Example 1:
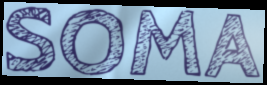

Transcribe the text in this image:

SOMA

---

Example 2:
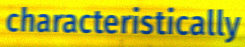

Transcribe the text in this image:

characteristically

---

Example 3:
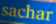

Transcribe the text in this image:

sachar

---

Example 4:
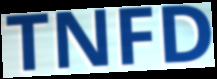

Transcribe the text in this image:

TNFD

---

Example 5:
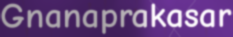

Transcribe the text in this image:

Gnanaprakasar